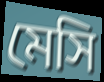
মেসি